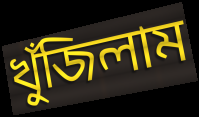
খুঁজিলাম